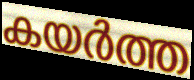
കയർത്ത